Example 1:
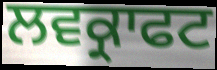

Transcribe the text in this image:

ਲਵਕ੍ਰਾਫਟ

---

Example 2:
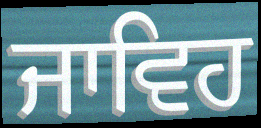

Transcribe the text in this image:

ਜਾਵਿਹ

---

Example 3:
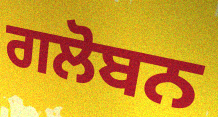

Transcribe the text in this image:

ਗਲੋਬਨ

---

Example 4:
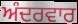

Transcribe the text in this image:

ਅੰਦਰਵਾਰ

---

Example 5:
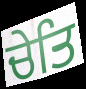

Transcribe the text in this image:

ਚੇਤਿ